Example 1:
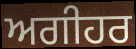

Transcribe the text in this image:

ਅਗੀਹਰ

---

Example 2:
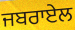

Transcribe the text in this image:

ਜਬਰਾਏਲ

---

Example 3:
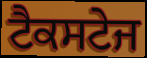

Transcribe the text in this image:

ਟੈਕਸਟੇਜ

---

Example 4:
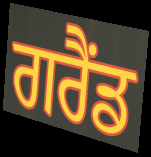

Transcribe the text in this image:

ਗਰੈਂਡ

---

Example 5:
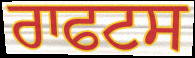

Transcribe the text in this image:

ਰਾਫਟਸ